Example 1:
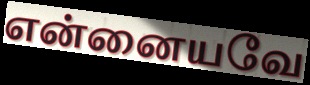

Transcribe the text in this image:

என்னையவே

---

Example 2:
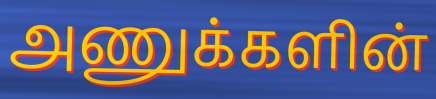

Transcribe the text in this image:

அணுக்களின்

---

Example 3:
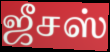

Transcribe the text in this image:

ஜீசஸ்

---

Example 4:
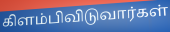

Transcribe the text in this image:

கிளம்பிவிடுவார்கள்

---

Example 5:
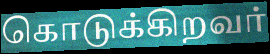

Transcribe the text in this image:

கொடுக்கிறவர்